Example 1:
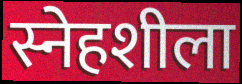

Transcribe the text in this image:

स्नेहशीला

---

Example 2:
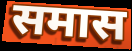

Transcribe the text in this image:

समास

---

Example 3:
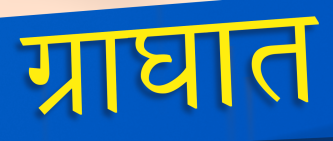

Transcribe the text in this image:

ग्राघात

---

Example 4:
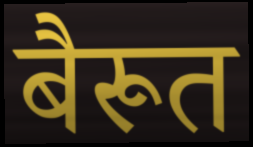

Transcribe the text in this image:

बैरूत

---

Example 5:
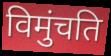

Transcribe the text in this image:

विमुंचति